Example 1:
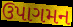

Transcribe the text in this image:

ઉપાગમન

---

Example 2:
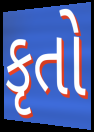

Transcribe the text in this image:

કૃતો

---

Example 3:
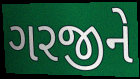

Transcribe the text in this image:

ગરજીને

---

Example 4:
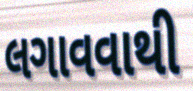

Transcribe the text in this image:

લગાવવાથી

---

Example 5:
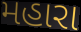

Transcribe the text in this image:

મહારા